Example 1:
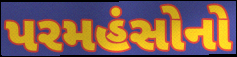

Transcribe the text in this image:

પરમહંસોનો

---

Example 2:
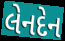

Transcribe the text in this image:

લેનદેન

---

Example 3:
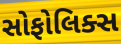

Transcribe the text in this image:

સોફોલિક્સ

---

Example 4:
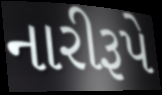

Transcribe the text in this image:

નારીરૂપે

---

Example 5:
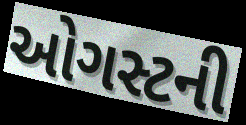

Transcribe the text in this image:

ઓગસ્ટની